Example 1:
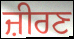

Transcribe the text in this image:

ਜ਼ੀਰਣ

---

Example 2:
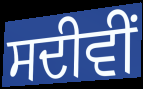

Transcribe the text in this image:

ਸਦੀਵੀਂ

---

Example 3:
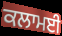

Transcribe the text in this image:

ਕਲਾਮਈ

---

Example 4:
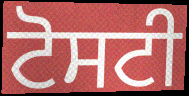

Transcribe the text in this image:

ਟੋਸਟੀ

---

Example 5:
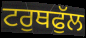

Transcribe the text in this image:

ਟਰੁਥਫੁੱਲ